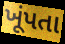
ખૂંપતા